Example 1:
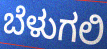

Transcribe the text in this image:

ಬೆಳುಗಲಿ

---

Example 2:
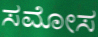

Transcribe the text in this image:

ಸಮೋಸ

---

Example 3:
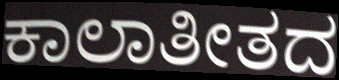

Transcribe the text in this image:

ಕಾಲಾತೀತದ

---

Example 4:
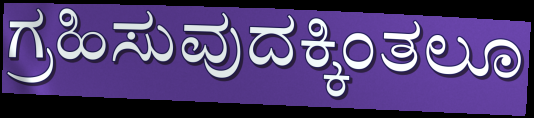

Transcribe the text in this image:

ಗ್ರಹಿಸುವುದಕ್ಕಿಂತಲೂ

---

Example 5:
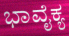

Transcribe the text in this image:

ಭಾವೈಕ್ಯ